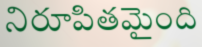
నిరూపితమైంది